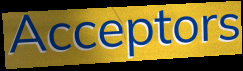
Acceptors